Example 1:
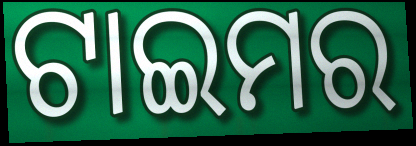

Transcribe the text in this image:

ଟାଇମର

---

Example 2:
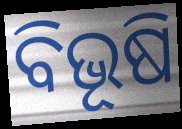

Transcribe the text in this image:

ବିଭୂଷି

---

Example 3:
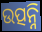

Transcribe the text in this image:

ଉତ୍ପନ୍ନି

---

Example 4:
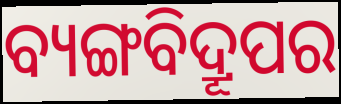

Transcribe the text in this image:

ବ୍ୟଙ୍ଗବିଦ୍ରୂପର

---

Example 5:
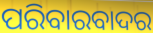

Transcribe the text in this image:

ପରିବାରବାଦର